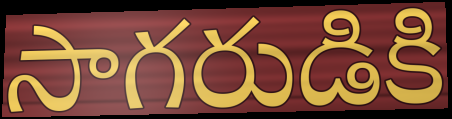
సాగరుడికి